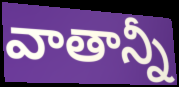
వాతాన్నీ